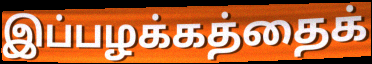
இப்பழக்கத்தைக்